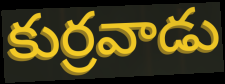
కుర్రవాడు